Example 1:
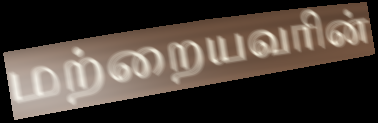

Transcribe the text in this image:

மற்றையவரின்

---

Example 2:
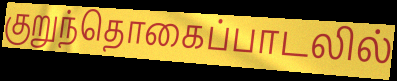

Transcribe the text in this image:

குறுந்தொகைப்பாடலில்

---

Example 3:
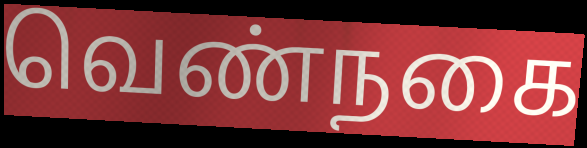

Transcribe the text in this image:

வெண்நகை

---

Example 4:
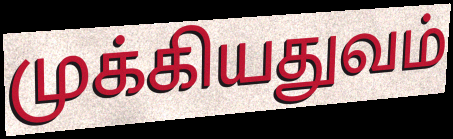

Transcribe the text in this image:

முக்கியதுவம்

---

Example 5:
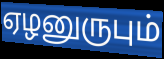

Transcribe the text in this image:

ஏழனுருபும்